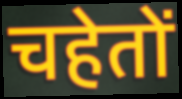
चहेतों